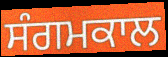
ਸੰਗਮਕਾਲ